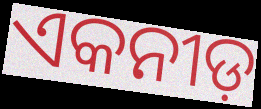
ଏକନୀଡ଼